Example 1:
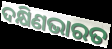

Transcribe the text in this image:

ଦକ୍ଷିଣଭାରତ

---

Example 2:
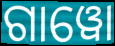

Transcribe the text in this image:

ଗାୱୋ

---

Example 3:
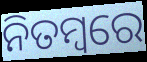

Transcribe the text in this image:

ନିତମ୍ୱରେ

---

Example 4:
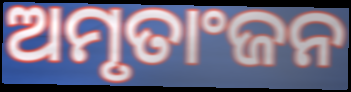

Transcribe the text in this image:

ଅମୃତାଂଜନ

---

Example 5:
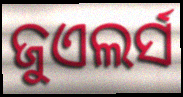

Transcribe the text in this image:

ଜୁଏଲର୍ସ